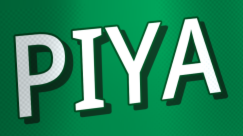
PIYA